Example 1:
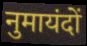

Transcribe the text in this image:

नुमायंदों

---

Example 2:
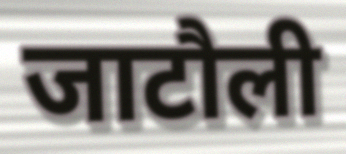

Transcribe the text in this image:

जाटौली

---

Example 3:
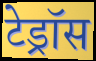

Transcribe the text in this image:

टेड्रॉस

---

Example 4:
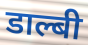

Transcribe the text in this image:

डाल्बी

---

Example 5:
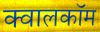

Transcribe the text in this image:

क्‍वालकॉम